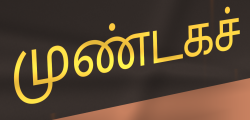
முண்டகச்